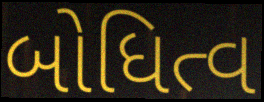
બોધિત્વ